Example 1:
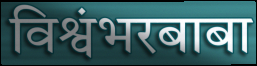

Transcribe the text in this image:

विश्वंभरबाबा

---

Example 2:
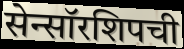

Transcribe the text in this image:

सेन्सॉरशिपची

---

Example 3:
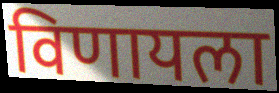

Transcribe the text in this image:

विणायला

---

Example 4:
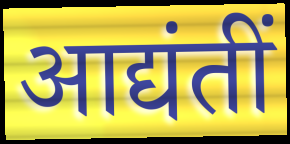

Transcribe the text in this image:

आद्यंतीं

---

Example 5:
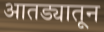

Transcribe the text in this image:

आतड्यातून